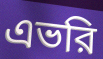
এভরি